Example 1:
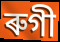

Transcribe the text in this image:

ৰুগী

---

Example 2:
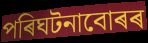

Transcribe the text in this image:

পৰিঘটনাবোৰৰ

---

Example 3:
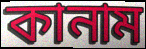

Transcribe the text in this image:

কানাম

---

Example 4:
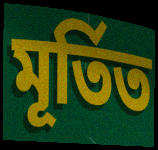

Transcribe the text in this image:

মূৰ্তিত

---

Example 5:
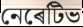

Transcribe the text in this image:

নেৰেটিভ